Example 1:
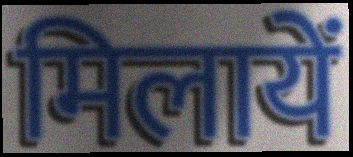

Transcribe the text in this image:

मिलायें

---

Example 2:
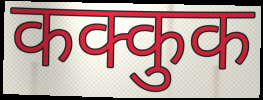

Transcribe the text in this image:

कक्कुक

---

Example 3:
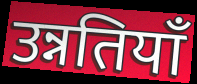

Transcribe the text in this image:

उन्नतियाँ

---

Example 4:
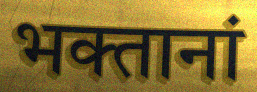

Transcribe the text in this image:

भक्तानां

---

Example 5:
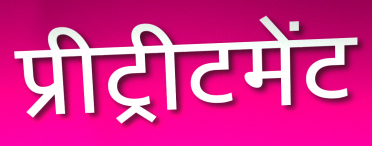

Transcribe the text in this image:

प्रीट्रीटमेंट